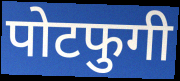
पोटफुगी